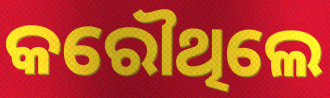
କରୌଥିଲେ